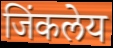
जिंकलेय